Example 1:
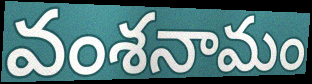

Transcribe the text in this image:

వంశనామం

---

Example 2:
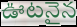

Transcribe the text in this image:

ఊటనైన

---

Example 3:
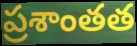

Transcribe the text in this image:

ప్రశాంతత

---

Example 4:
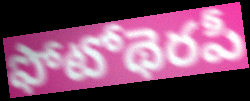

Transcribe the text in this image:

ఫోటోథెరపీ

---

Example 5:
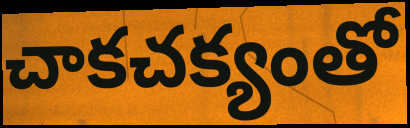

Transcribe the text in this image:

చాకచక్యంతో